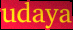
udaya